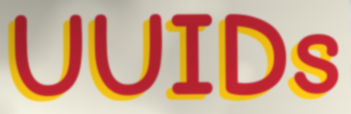
UUIDs